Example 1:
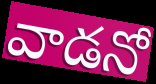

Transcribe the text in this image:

వాడనో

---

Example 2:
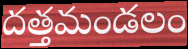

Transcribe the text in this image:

దత్తమండలం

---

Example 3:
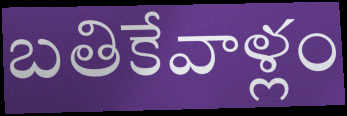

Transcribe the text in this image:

బతికేవాళ్లం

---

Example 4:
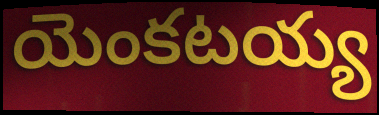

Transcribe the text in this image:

యెంకటయ్య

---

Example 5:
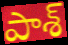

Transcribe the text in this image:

పాశ్